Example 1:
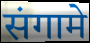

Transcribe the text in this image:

संगामे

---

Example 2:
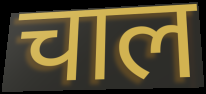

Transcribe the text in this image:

चाल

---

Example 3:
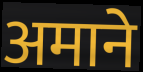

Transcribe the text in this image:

अमाने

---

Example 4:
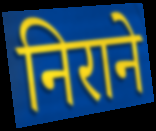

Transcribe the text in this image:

निराने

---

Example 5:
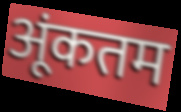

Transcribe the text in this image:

अूंकतम